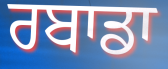
ਰਬਾਡਾ